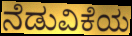
ನೆಡುವಿಕೆಯ